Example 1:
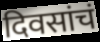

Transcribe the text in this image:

दिवसांचं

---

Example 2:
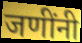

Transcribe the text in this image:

जणींनी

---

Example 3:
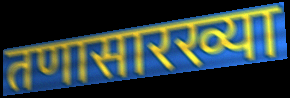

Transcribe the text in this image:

तणासारख्या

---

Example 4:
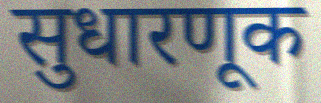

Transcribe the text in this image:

सुधारणूक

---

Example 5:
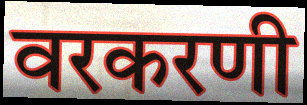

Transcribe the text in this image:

वरकरणी